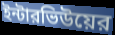
ইন্টারভিউয়ের